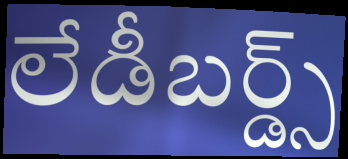
లేడీబర్డ్స్